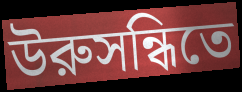
উরুসন্ধিতে